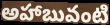
అహాబువంటి